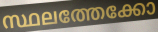
സ്ഥലത്തേക്കോ